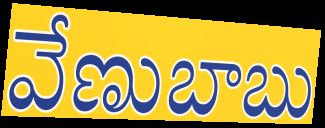
వేణుబాబు